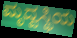
ಮೃದ್ವಸ್ಥಿಯ